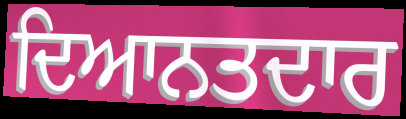
ਦਿਆਨਤਦਾਰ